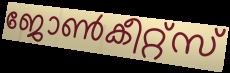
ജോൺകീറ്റ്സ്